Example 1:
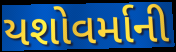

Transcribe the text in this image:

યશોવર્માની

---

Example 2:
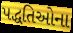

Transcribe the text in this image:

પદ્ધતિઓના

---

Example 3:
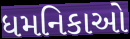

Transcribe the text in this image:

ધમનિકાઓ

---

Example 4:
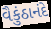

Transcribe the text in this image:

વૈકુંઠાનંદે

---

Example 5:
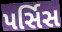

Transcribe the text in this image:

પર્સિસ